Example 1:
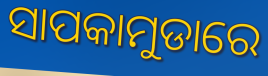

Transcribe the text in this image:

ସାପକାମୁଡାରେ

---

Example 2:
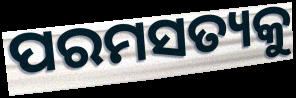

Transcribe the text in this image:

ପରମସତ୍ୟକୁ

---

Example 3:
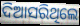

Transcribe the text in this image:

ଦିଆସରିଥିଲେ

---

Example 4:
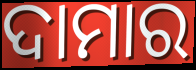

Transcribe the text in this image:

ଦାମାର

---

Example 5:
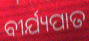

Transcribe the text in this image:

ବୀର୍ଯ୍ୟପାତ